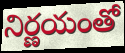
నిర్ణయంతో